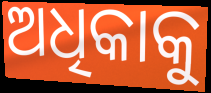
ଅଧିକାକୁ